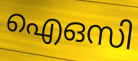
ഐഒസി